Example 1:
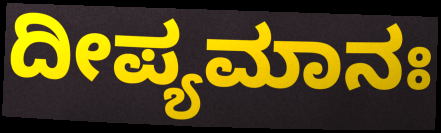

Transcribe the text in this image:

ದೀಪ್ಯಮಾನಃ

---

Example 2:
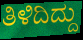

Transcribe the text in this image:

ತಿಳಿದಿದ್ದು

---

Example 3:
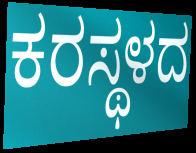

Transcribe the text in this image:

ಕರಸ್ಥಳದ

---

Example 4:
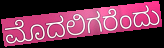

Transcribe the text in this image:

ಮೊದಲಿಗರೆಂದು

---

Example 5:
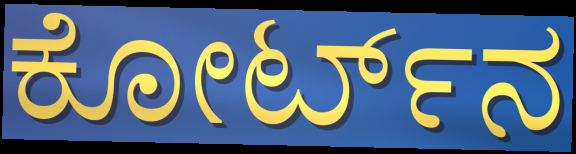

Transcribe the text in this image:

ಕೋರ್ಟ್‍ನ